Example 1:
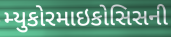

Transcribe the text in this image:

મ્યુકોરમાઇકોસિસની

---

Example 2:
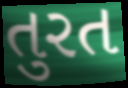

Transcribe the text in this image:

તુરત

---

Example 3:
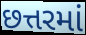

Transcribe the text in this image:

છત્તરમાં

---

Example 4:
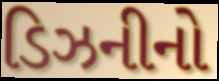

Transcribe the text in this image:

ડિઝનીનો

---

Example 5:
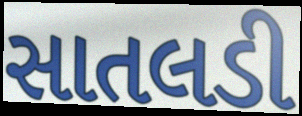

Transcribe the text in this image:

સાતલડી